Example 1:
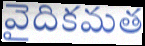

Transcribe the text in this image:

వైదికమత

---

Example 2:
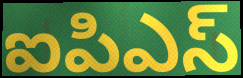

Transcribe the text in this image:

ఐపిఎస్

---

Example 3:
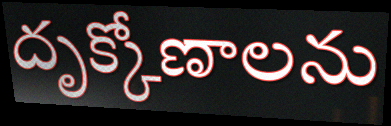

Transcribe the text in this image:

దృక్కోణాలను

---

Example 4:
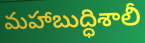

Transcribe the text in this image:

మహాబుద్ధిశాలీ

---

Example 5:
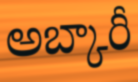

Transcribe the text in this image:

అబ్కారీ